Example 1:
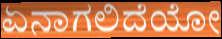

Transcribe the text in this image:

ಏನಾಗಲಿದೆಯೋ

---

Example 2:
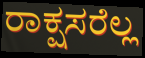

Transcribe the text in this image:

ರಾಕ್ಷಸರೆಲ್ಲ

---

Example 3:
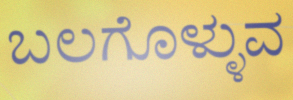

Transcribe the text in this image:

ಬಲಗೊಳ್ಳುವ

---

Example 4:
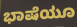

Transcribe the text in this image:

ಭಾಷೆಯೂ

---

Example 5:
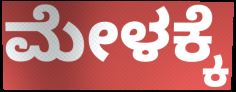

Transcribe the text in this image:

ಮೇಳಕ್ಕೆ